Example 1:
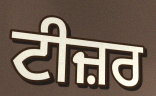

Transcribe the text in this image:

ਟੀਜ਼ਰ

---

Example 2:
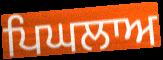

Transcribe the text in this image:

ਪਿਘਲਾਅ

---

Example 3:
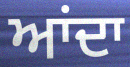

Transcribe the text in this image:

ਆਂਦਾ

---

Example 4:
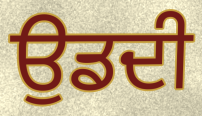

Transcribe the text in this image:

ਉਡਦੀ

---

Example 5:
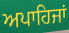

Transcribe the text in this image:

ਅਪਾਹਿਜਾਂ